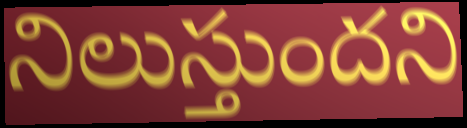
నిలుస్తుందని